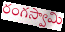
రంగస్వామి